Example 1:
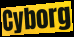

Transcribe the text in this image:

Cyborg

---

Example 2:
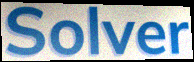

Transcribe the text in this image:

Solver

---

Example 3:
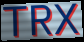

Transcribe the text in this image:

TRX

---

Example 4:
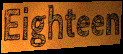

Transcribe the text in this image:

Eighteen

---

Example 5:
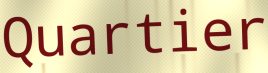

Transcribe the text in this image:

Quartier